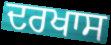
ਦਰਖਾਸ